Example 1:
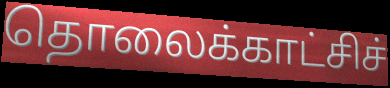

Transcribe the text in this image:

தொலைக்காட்சிச்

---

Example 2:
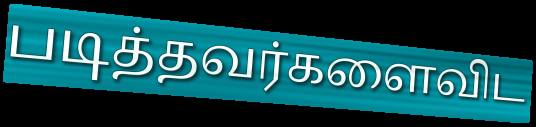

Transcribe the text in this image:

படித்தவர்களைவிட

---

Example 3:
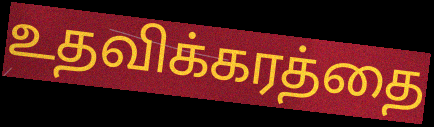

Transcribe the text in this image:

உதவிக்கரத்தை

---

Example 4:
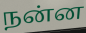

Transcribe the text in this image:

நன்ன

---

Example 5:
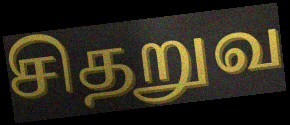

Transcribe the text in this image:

சிதறுவ